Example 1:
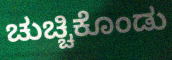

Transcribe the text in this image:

ಚುಚ್ಚಿಕೊಂಡು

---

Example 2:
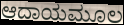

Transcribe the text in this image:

ಆದಾಯಮೂಲ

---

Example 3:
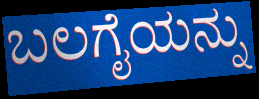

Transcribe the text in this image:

ಬಲಗೈಯನ್ನು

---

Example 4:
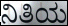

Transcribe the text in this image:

ನಿತಿಯ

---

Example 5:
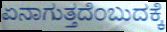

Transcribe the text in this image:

ಏನಾಗುತ್ತದೆಂಬುದಕ್ಕೆ